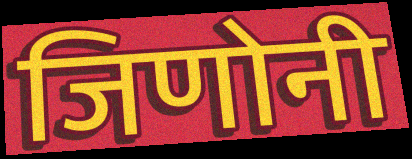
जिणोनी